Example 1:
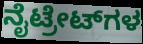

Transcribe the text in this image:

ನೈಟ್ರೇಟ್‌ಗಳ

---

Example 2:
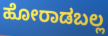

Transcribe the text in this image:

ಹೋರಾಡಬಲ್ಲ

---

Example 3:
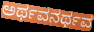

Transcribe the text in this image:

ಅರ್ಥವನರ್ಥವ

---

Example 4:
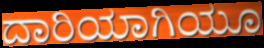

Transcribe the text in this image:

ದಾರಿಯಾಗಿಯೂ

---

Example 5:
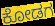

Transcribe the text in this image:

ಕೋಡಗ